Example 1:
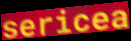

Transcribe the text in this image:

sericea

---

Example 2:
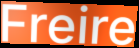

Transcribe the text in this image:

Freire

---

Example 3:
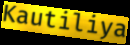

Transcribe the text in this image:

Kautiliya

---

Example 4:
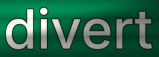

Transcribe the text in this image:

divert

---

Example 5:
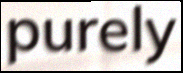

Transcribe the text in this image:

purely